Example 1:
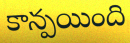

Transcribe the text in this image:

కాన్పయింది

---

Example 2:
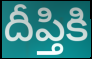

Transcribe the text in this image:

దీప్తికి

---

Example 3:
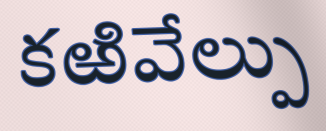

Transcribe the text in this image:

కఱివేల్పు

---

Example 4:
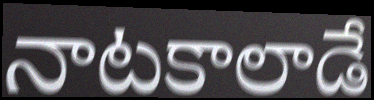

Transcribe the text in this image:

నాటకాలాడే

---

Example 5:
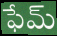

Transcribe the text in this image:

ఫేమ్